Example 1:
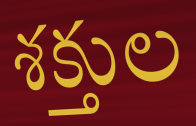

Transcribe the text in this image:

శక్తుల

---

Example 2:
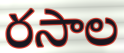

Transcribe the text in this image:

రసాల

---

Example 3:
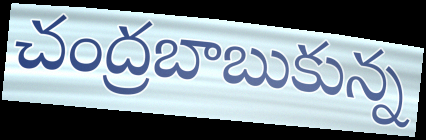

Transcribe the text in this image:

చంద్రబాబుకున్న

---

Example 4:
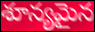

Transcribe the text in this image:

శూన్యమైన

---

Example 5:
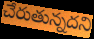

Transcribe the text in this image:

చేరుతున్నదని